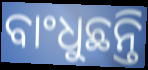
ବାଂଧୁଛନ୍ତି